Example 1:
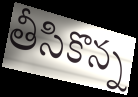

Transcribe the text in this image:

తీసికొన్న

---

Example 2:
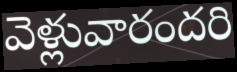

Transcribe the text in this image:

వెళ్లువారందరి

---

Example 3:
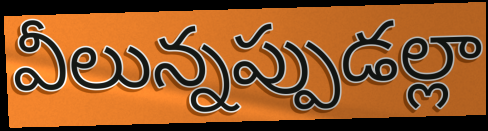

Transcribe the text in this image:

వీలున్నప్పుడల్లా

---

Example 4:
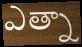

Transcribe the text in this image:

ఎత్నా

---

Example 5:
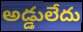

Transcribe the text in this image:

అడ్డులేదు